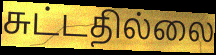
சுட்டதில்லை